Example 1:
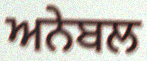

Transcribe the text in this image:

ਅਨੇਬਲ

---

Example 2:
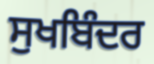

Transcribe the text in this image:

ਸੁਖਬਿੰਦਰ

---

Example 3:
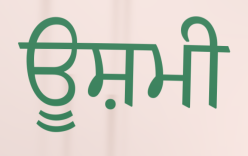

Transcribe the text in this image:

ਊਸ਼ਮੀ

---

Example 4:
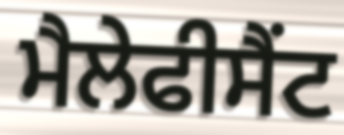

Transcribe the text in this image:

ਮੈਲੇਫੀਸੈਂਟ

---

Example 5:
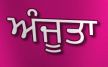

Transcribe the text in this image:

ਅੰਜੂਤਾ